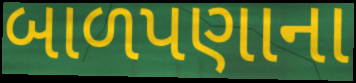
બાળપણાના